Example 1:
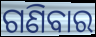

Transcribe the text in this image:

ଗଣିବାର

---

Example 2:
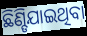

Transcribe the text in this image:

ଛିଣ୍ଡିଯାଇଥିବା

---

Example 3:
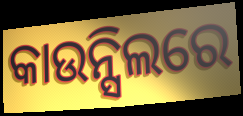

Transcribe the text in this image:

କାଉନ୍ସିଲରେ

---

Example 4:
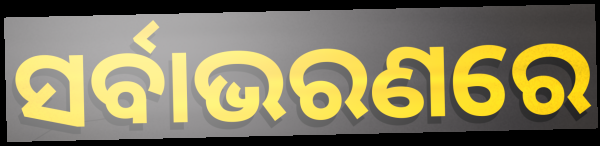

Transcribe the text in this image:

ସର୍ବାଭରଣରେ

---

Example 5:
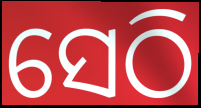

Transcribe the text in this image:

ସେଠି